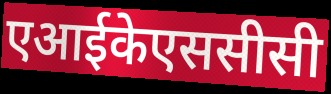
एआईकेएससीसी